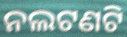
ନଲଟଣଟି